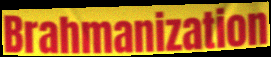
Brahmanization